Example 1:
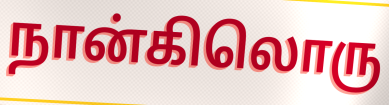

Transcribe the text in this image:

நான்கிலொரு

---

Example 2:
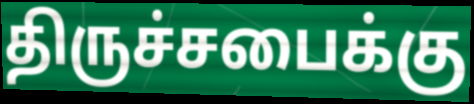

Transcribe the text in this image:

திருச்சபைக்கு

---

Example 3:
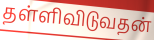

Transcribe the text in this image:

தள்ளிவிடுவதன்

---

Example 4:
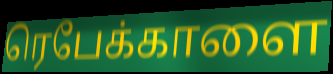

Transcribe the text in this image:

ரெபேக்காளை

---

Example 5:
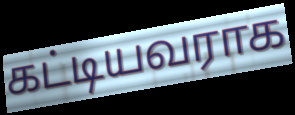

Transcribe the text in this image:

கட்டியவராக